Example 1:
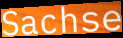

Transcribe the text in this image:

Sachse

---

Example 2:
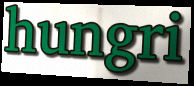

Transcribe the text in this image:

hungri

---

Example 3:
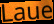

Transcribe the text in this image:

Laue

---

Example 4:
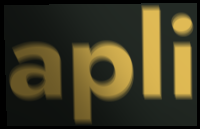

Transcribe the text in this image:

apli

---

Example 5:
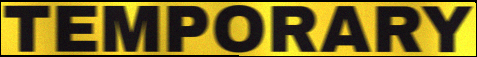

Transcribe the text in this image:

TEMPORARY